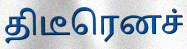
திடீரெனச்